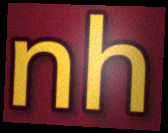
nh